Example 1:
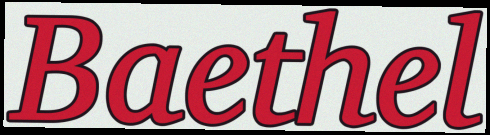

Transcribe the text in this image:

Baethel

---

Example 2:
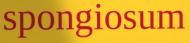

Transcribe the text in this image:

spongiosum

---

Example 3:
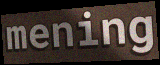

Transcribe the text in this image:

mening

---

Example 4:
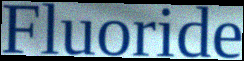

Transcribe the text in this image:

Fluoride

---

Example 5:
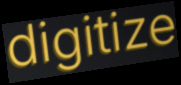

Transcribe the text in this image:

digitize